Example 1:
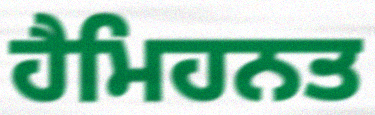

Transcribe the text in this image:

ਹੈਮਿਹਨਤ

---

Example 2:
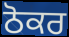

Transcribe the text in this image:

ਠੋਕਰ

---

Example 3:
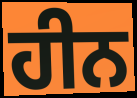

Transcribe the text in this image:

ਹੀਨ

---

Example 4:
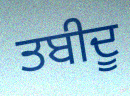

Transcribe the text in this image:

ਤਬੀਦੂ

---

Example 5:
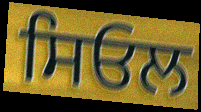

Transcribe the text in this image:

ਸਿਓਲ